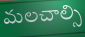
మలచాల్సి